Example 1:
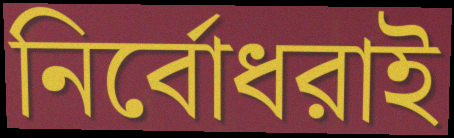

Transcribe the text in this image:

নির্বোধরাই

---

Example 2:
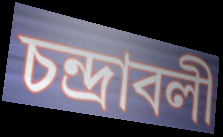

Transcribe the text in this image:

চন্দ্রাবলী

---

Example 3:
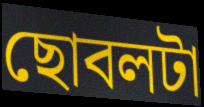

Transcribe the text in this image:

ছোবলটা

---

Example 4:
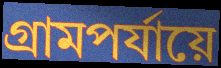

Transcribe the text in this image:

গ্রামপর্যায়ে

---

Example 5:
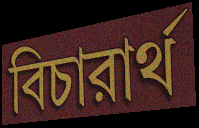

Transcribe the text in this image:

বিচারার্থ